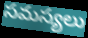
సమస్యలు